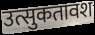
उत्सुकतावश